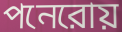
পনেরোয়